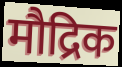
मौद्रिक